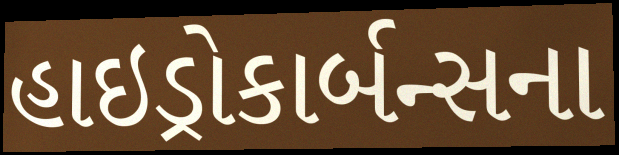
હાઇડ્રોકાર્બન્સના